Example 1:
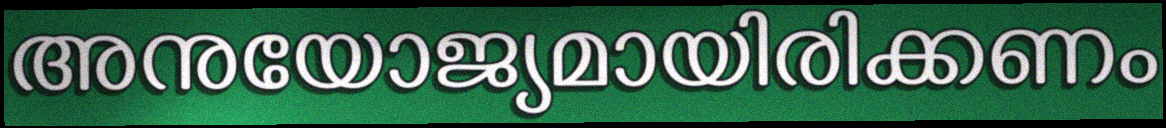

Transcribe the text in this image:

അനുയോജ്യമായിരിക്കണം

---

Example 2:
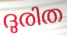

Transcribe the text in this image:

ദുരിത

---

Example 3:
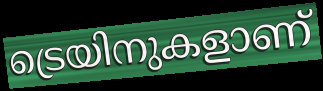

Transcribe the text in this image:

ട്രെയിനുകളാണ്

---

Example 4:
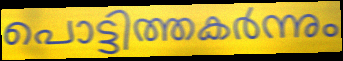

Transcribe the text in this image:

പൊട്ടിത്തകർന്നും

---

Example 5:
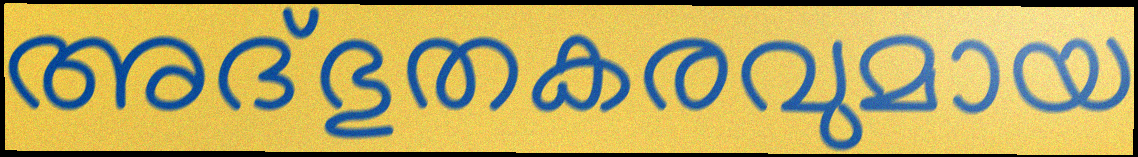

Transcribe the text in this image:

അദ്ഭുതകരവുമായ